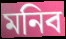
মনিব